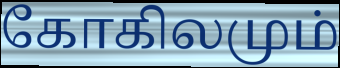
கோகிலமும்